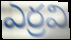
ఎర్రవి